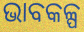
ଭାବକଳ୍ପ